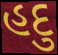
હદુ